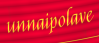
unnaipolave